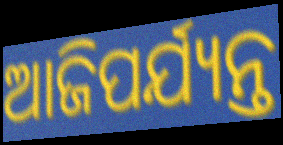
ଆଜିପର୍ଯ୍ୟନ୍ତ